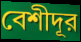
বেশীদূর